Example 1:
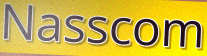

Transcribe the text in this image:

Nasscom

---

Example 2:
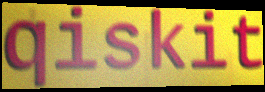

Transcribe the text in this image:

qiskit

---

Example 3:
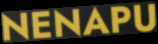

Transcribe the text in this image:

NENAPU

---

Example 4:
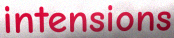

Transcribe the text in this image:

intensions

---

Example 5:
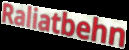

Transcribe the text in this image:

Raliatbehn